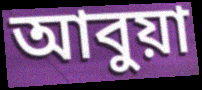
আবুয়া